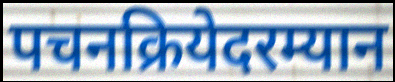
पचनक्रियेदरम्यान